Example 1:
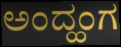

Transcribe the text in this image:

ಅಂದ್ಹಂಗ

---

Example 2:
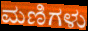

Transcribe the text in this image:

ಮಣಿಗಳು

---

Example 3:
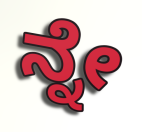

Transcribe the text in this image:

ನ್ನೇ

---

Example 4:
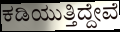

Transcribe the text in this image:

ಕಡಿಯುತ್ತಿದ್ದೇವೆ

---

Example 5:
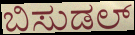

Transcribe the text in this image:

ಬಿಸುಡಲ್